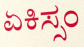
ಏಕಿಸ್ಸಂ